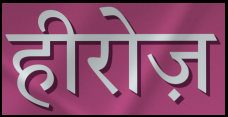
हीरोज़